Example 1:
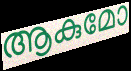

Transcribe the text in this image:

ആകുമോ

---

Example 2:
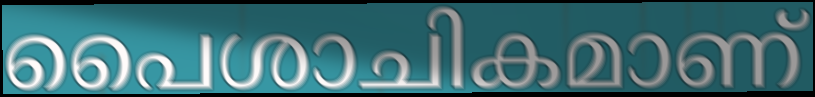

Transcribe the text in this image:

പൈശാചികമാണ്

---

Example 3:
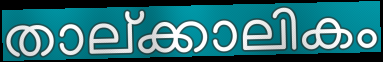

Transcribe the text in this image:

താല്ക്കാലികം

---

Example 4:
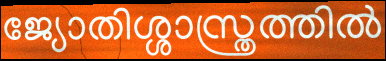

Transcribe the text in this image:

ജ്യോതിശ്ശാസ്ത്രത്തിൽ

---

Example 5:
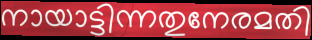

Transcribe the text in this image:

നായാട്ടിന്നതുനേരമതി